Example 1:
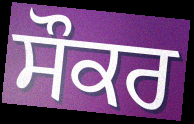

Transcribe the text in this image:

ਸੌਕਰ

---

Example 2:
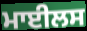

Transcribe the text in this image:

ਮਾਈਲਸ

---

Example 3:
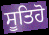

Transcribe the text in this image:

ਸੂਤਿਹੋ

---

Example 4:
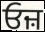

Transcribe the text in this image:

ਓਜ਼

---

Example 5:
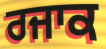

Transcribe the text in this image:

ਰਜਾਕ